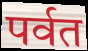
पर्वत